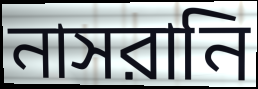
নাসরানি